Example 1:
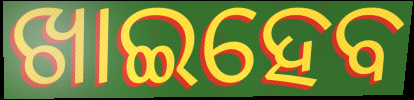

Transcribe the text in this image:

ଖାଇହେବ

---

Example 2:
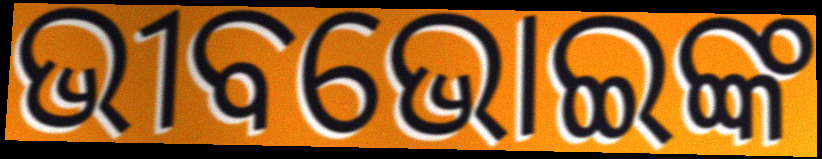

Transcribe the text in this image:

ଭୀବଭୋଇଙ୍କ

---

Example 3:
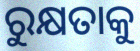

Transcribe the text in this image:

ରୁକ୍ଷତାକୁ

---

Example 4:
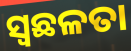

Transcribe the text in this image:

ସ୍ୱଛଳତା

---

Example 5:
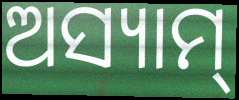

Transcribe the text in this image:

ଅସ୍ୟାମ୍